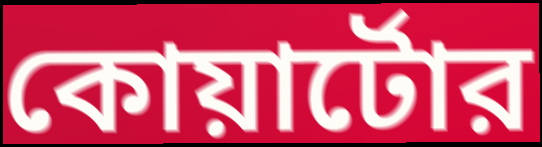
কোয়ার্টোর